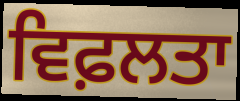
ਵਿਫ਼ਲਤਾ